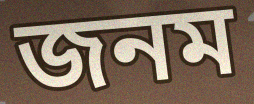
জনম